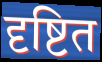
दृष्टित